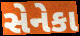
સેનેકા